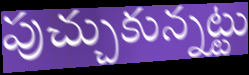
పుచ్చుకున్నట్టు